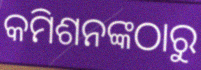
କମିଶନଙ୍କଠାରୁ